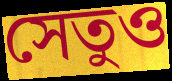
সেতুও